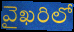
వైఖరిలో